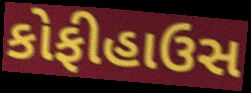
કોફીહાઉસ